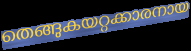
തെങ്ങുകയറ്റക്കാരനായ